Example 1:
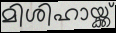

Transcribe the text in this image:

മിശിഹായ്ക്ക്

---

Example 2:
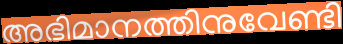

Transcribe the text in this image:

അഭിമാനത്തിനുവേണ്ടി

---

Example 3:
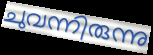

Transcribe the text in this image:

ചുവന്നിരുന്നു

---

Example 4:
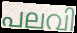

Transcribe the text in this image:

പലവി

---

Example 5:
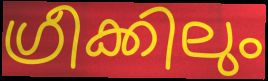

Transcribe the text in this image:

ഗ്രീക്കിലും